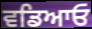
ਵਡਿਆਓ